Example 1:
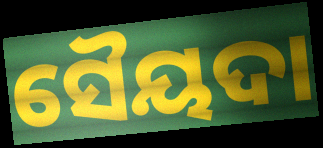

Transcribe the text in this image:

ସୈୟଦା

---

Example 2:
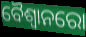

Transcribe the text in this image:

ବୈଶ୍ୱାନରୋ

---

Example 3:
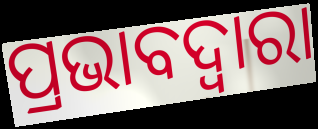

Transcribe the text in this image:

ପ୍ରଭାବଦ୍ୱାରା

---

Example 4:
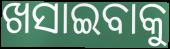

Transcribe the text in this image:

ଖସାଇବାକୁ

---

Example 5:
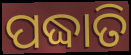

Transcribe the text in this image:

ପଦ୍ଧାତି